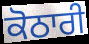
ਕੋਠਾਰੀ